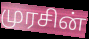
முரசின்